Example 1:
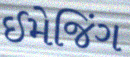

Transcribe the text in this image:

ઈમેજિંગ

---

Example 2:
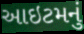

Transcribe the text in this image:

આઇટમનું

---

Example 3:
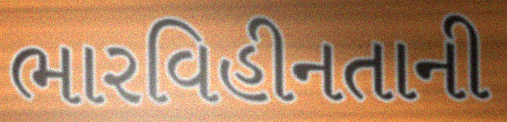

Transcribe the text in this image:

ભારવિહીનતાની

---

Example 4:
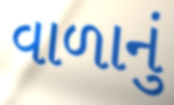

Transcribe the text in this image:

વાળાનું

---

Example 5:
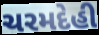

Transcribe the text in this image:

ચરમદેહી